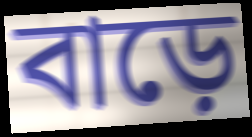
বাড়ে